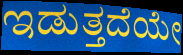
ಇಡುತ್ತದೆಯೇ